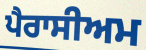
ਪੈਰਾਸੀਅਮ